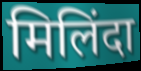
मिलिंदा